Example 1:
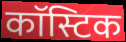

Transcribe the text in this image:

कॉस्टिक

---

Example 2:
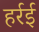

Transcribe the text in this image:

हर्रई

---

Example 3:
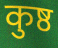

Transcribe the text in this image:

कुष्ठ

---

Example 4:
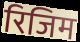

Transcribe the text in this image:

रिजिम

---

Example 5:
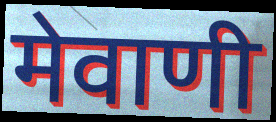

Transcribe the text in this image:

मेवाणी